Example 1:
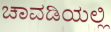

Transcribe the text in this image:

ಚಾವಡಿಯಲ್ಲಿ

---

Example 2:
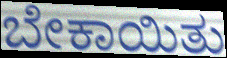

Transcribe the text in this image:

ಬೇಕಾಯಿತು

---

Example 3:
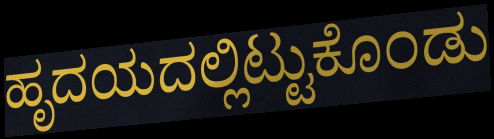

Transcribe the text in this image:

ಹೃದಯದಲ್ಲಿಟ್ಟುಕೊಂಡು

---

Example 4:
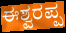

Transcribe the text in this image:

ಈಶ್ವರಪ್ಪ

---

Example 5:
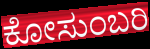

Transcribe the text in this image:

ಕೋಸುಂಬರಿ